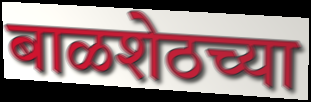
बाळशेठच्या